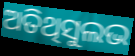
ଅତିଥିସୁଲଭ